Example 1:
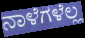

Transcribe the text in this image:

ನಾಳೆಗಳೆಲ್ಲ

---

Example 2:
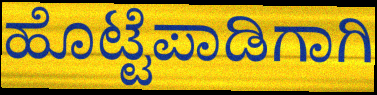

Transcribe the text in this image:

ಹೊಟ್ಟೆಪಾಡಿಗಾಗಿ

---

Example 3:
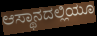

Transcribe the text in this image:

ಆಸ್ಥಾನದಲ್ಲಿಯೂ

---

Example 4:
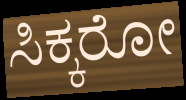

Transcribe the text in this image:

ಸಿಕ್ಕರೋ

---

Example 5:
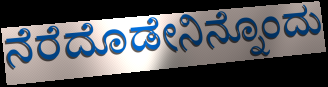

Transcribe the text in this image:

ನೆರೆದೊಡೇನಿನ್ನೊಂದು